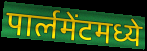
पार्लमेंटमध्ये